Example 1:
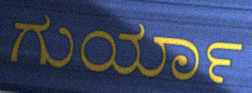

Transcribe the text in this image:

ಗುರ್ಯಾ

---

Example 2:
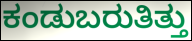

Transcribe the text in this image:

ಕಂಡುಬರುತಿತ್ತು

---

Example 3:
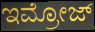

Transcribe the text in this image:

ಇಮ್ರೋಜ್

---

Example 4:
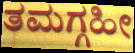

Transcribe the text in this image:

ತಮಗ್ಗಹೀ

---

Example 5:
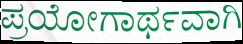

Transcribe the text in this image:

ಪ್ರಯೋಗಾರ್ಥವಾಗಿ